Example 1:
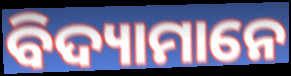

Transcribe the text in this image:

ବିଦ୍ୟାମାନେ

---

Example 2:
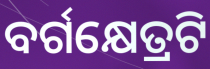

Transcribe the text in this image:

ବର୍ଗକ୍ଷେତ୍ରଟି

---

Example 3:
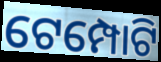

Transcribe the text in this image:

ଟେମ୍ପୋଟି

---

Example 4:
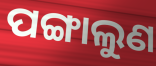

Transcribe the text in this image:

ପଙ୍ଗାଲୁଣ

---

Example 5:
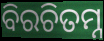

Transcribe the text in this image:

ବିରଚିତମ୍ନ